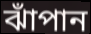
ঝাঁপান